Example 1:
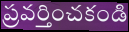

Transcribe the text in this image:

ప్రవర్తించకండి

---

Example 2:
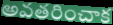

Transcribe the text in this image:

అవతరించాక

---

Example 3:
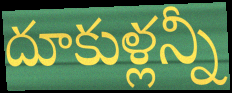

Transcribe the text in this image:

దూకుళ్లన్నీ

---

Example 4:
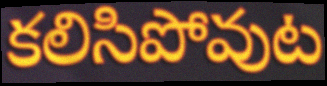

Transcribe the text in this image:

కలిసిపోవుట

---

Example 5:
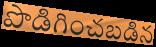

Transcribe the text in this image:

పొడిగించబడిన